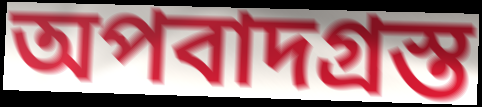
অপবাদগ্রস্ত